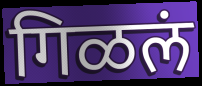
गिळलं